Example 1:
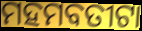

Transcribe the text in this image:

ମହମବତୀଟା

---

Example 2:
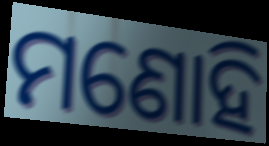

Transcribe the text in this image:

ମଣୋହି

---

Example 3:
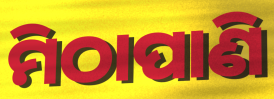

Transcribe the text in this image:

ମିଠାପାଣି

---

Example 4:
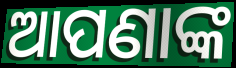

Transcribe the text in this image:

ଆପଣାଙ୍କ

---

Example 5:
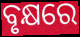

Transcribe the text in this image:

ବୃକ୍ଷରେ